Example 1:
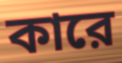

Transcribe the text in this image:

কারে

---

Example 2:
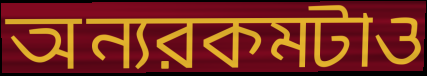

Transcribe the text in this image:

অন্যরকমটাও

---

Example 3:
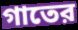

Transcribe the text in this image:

গাতের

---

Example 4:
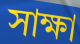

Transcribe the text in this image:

সাক্ষা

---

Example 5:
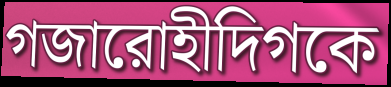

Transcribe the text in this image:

গজারোহীদিগকে